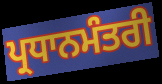
ਪ੍ਰਧਾਨਮੰਤਰੀ